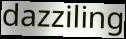
dazziling